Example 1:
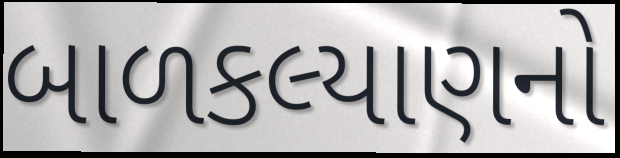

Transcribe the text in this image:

બાળકલ્યાણનો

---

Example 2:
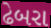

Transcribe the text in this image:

ઢેબરા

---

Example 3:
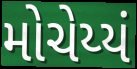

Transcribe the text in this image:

મોચેય્યં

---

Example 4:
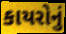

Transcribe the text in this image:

કાયરોનું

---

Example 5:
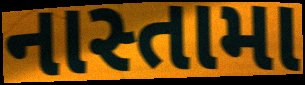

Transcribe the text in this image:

નાસ્તામા